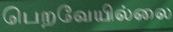
பெறவேயில்லை